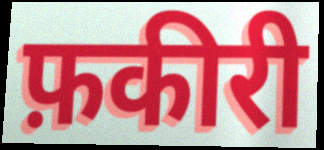
फ़कीरी